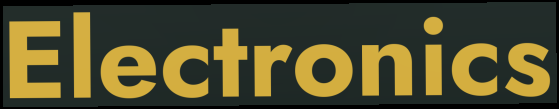
Electronics